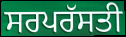
ਸਰਪਰੱਸਤੀ